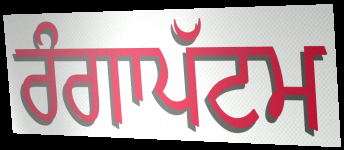
ਰੰਗਾਪੱਟਮ